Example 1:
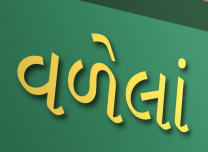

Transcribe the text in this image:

વળેલાં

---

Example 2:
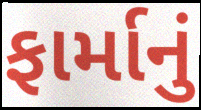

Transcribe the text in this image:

ફાર્માનું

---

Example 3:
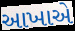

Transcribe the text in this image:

આખાએ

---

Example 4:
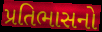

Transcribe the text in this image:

પ્રતિભાસનો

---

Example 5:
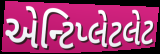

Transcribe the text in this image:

એન્ટિપ્લેટલેટ